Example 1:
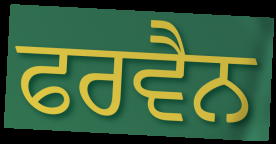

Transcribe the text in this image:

ਫਰਵੈਨ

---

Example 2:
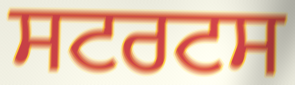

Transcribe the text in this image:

ਸਟਰਟਸ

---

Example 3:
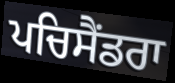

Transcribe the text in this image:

ਪਚਿਸੈਂਡਰਾ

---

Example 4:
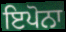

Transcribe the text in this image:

ਇਪੋਨਾ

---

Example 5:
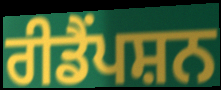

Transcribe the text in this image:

ਰੀਡੈਂਪਸ਼ਨ